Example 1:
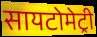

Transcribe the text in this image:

सायटोमेट्री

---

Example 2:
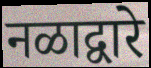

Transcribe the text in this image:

नळाद्वारे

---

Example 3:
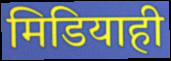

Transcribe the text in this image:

मिडियाही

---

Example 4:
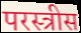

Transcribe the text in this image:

परस्त्रीस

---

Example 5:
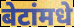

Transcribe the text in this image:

बेटांमधे